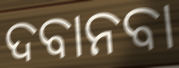
ଦବାନବା